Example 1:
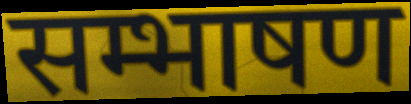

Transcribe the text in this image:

सम्भाषण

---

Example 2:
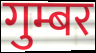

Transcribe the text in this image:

गुम्बर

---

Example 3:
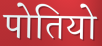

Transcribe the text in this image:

पोतियो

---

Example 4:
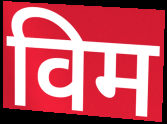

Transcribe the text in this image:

विम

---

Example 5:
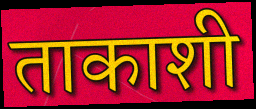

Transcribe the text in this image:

ताकाशी